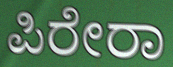
ಪಿರೇರಾ